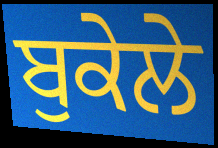
ਬੁਕੇਲੇ